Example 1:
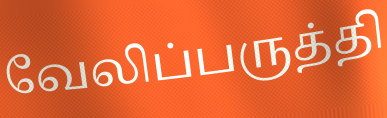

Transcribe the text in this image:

வேலிப்பருத்தி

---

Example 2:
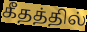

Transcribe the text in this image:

கீதத்தில்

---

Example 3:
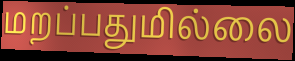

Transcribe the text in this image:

மறப்பதுமில்லை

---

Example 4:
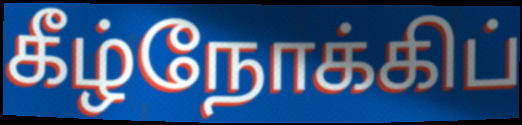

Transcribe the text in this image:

கீழ்நோக்கிப்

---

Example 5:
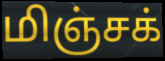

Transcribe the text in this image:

மிஞ்சக்